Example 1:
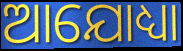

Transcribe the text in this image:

ଆଯୋଧ୍ୟା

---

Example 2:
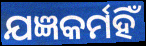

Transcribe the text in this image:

ଯଜ୍ଞକର୍ମହିଁ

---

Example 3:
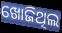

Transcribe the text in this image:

ଖୋଜିଥିଲ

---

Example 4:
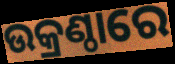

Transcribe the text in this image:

ଉକ୍ରଣ୍ଠାରେ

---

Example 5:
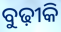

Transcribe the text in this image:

ବୁଢ଼ୀକି